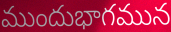
ముందుభాగమున